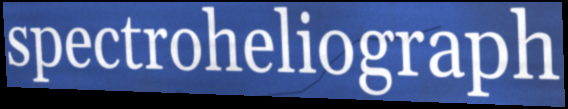
spectroheliograph